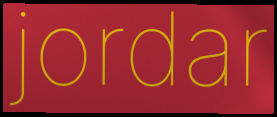
jordar